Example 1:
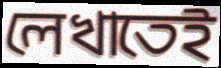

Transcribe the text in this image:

লেখাতেই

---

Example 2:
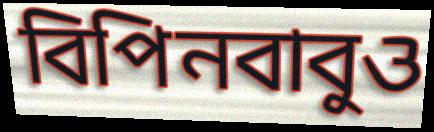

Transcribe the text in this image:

বিপিনবাবুও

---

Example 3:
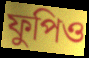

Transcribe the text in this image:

ফুপিও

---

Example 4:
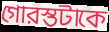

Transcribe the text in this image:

গোরস্তটাকে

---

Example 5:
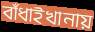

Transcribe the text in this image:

বাঁধাইখানায়